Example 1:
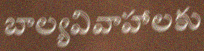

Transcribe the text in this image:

బాల్యవివాహాలకు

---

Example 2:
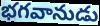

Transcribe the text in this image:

భగవానుడు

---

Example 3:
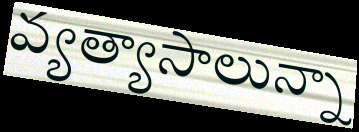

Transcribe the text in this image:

వ్యత్యాసాలున్నా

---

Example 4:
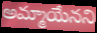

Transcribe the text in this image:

అమ్మాయేనని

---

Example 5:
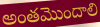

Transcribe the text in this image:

అంతమొందాలి